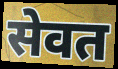
सेवत